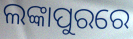
ଲଙ୍କାପୁରରେ